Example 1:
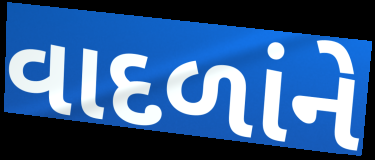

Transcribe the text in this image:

વાદળાંને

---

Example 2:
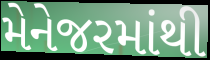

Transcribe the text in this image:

મેનેજરમાંથી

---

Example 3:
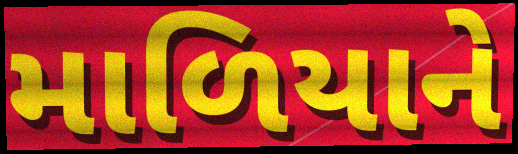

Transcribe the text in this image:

માળિયાને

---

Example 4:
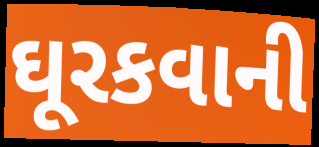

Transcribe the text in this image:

ઘૂરકવાની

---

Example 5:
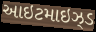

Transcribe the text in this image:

આઇટમાઇઝ્ડ